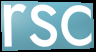
rsc